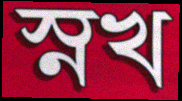
স্নখ